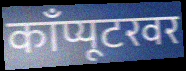
काँप्यूटरवर